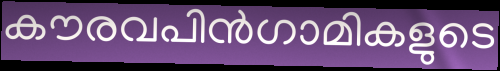
കൗരവപിൻഗാമികളുടെ